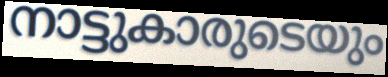
നാട്ടുകാരുടെയും